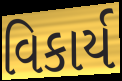
વિકાર્ય